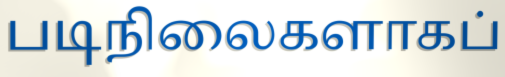
படிநிலைகளாகப்